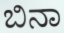
ಬಿನಾ